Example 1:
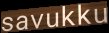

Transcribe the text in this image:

savukku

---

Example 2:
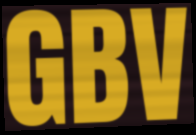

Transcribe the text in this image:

GBV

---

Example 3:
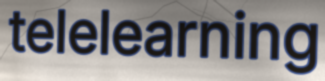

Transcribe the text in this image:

telelearning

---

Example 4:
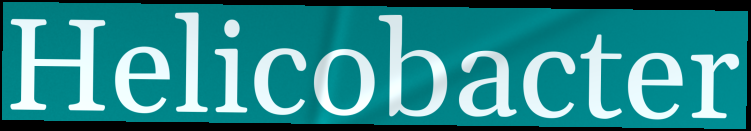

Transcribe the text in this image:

Helicobacter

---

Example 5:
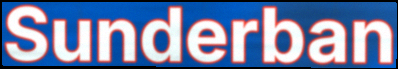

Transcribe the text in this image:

Sunderban